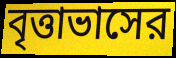
বৃত্তাভাসের